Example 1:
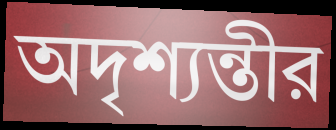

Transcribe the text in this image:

অদৃশ্যন্তীর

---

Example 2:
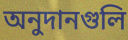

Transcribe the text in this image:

অনুদানগুলি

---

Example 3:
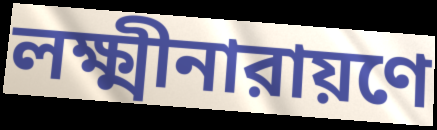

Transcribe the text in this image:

লক্ষ্মীনারায়ণে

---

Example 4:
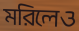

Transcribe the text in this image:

মরিলেও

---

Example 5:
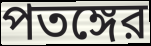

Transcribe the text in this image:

পতঙ্গের